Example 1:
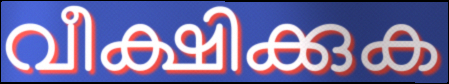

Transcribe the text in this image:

വീക്ഷിക്കുക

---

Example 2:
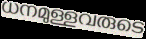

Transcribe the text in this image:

ധനമുള്ളവരുടെ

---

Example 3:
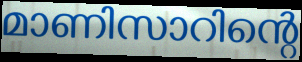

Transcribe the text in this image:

മാണിസാറിന്റെ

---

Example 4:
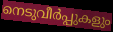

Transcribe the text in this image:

നെടുവീർപ്പുകളും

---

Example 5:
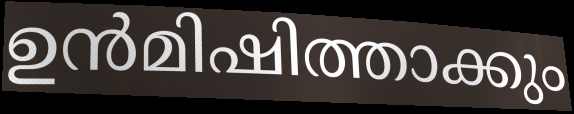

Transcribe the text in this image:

ഉൻമിഷിത്താക്കും